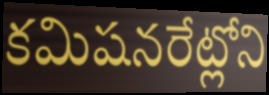
కమిషనరేట్లోని